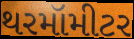
થરમૉમીટર